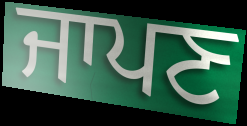
ਜਾਪਣ